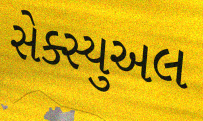
સેક્સ્યુઅલ